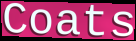
Coats